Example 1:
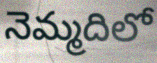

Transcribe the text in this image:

నెమ్మదిలో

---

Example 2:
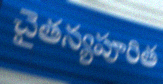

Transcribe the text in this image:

చైతన్యపూరిత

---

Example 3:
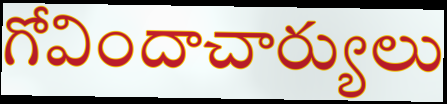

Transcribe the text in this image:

గోవిందాచార్యులు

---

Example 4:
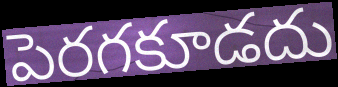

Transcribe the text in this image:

పెరగకూడదు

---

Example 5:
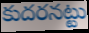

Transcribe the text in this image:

కుదరనట్టు